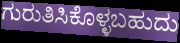
ಗುರುತಿಸಿಕೊಳ್ಳಬಹುದು